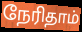
நேரிதாம்